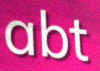
abt